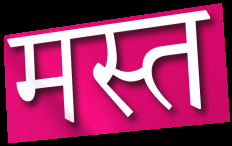
मस्त